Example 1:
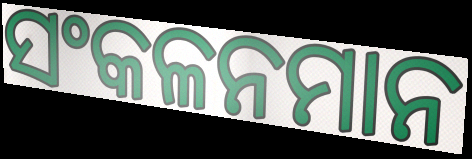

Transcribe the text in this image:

ସଂକଳନମାନ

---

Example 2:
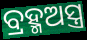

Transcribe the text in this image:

ବ୍ରହ୍ମଅସ୍ତ୍ର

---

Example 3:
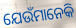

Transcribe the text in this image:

ଯେଉଁମାନେକି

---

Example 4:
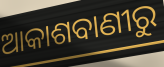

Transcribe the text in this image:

ଆକାଶବାଣୀରୁ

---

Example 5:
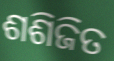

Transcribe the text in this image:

ଶଶିଜିତ